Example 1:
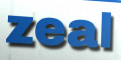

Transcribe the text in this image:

zeal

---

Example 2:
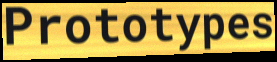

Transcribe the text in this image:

Prototypes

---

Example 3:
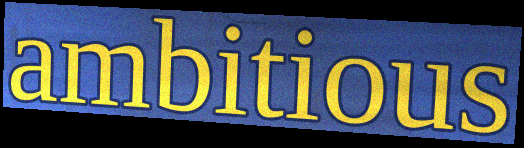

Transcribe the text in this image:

ambitious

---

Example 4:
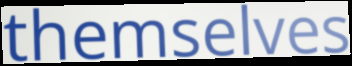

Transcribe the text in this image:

themselves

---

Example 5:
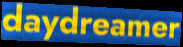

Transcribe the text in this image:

daydreamer